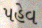
પહેવ